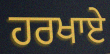
ਹਰਖਾਏ